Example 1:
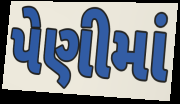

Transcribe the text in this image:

પેણીમાં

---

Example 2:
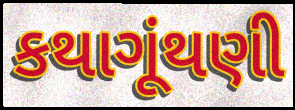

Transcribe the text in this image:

કથાગૂંથણી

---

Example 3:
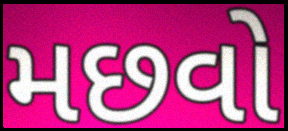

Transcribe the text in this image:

મછવો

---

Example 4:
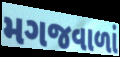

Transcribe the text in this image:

મગજવાળાં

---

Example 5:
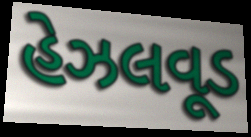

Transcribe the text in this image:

હેઝલવૂડ